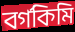
বর্গকিমি